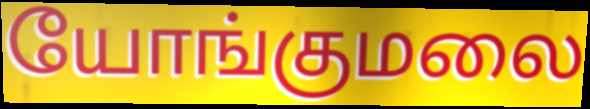
யோங்குமலை